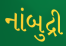
નાંબુદ્રી